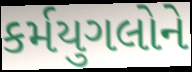
કર્મયુગલોને